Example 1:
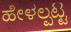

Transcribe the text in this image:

ಹೇಳಲ್ಪಟ್ಟ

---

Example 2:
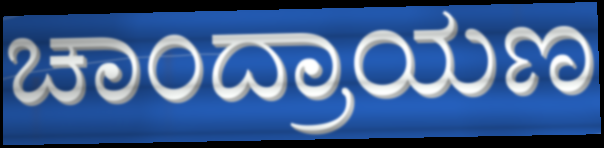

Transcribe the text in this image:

ಚಾಂದ್ರಾಯಣ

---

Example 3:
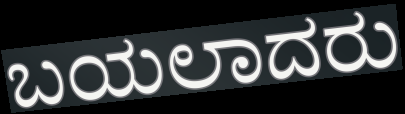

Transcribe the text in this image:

ಬಯಲಾದರು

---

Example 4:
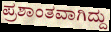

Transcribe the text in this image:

ಪ್ರಶಾಂತವಾಗಿದ್ದು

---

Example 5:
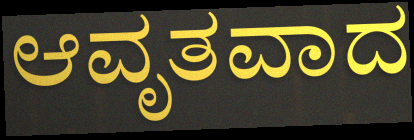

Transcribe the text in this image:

ಆವೃತವಾದ